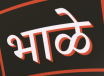
भाळे